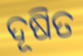
ଦୂଷିତ